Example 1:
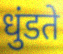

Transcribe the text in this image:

धुंडते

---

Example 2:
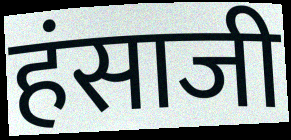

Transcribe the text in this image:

हंसाजी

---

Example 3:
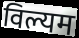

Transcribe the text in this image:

विल्यम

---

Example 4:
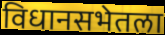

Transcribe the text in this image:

विधानसभेतला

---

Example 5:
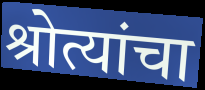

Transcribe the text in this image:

श्रोत्यांचा